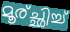
മൂര്ച്ഛിച്ച്